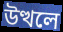
উত্থলে